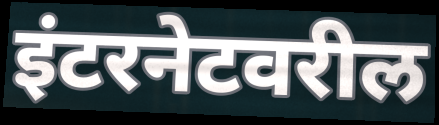
इंटरनेटवरील